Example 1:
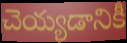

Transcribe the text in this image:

చెయ్యడానికీ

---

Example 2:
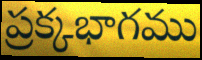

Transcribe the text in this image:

ప్రక్కభాగము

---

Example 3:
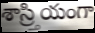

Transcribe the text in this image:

శాస్ర్తియంగా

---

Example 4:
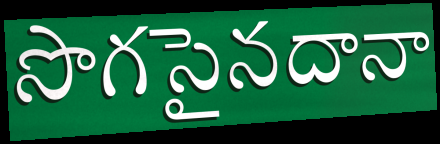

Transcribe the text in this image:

సొగసైనదానా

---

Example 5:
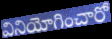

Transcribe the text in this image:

వినియోగించారో